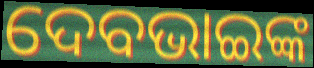
ଦେବଭାଇଙ୍କ